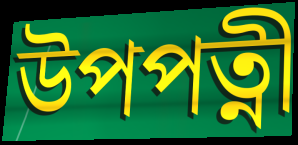
উপপত্নী